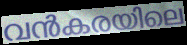
വൻകരയിലെ